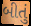
બીતું